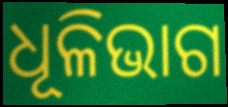
ଧୂଳିଭାଗ